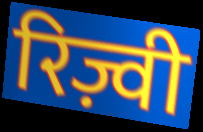
रिज़्वी